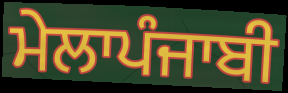
ਮੇਲਾਪੰਜਾਬੀ